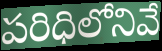
పరిధిలోనివే